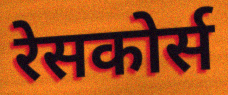
रेसकोर्स